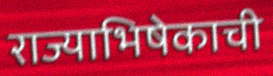
राज्याभिषेकाची